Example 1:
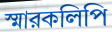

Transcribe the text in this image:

স্মারকলিপি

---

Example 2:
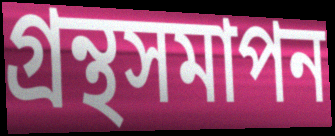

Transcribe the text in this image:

গ্রন্থসমাপন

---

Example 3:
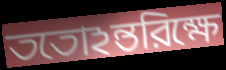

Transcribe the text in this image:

ততোঽন্তরিক্ষে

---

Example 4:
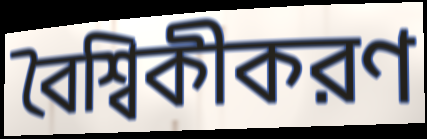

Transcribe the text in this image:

বৈশ্বিকীকরণ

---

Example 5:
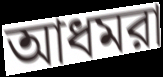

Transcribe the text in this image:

আধমরা